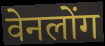
वेनलोंग